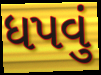
ધપવું